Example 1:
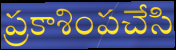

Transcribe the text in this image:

ప్రకాశింపచేసి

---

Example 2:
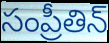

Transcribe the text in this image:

సంప్రీతిన్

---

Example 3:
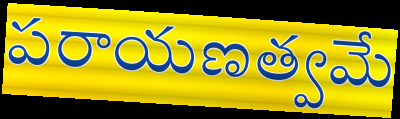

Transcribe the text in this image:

పరాయణత్వమే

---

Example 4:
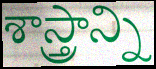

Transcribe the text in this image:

శాస్త్రాన్ని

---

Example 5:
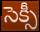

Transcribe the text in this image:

సెక్సీ